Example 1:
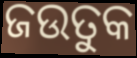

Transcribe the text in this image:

ଜଉତୁକ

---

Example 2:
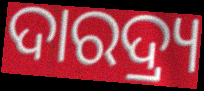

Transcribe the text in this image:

ଦାରଦ୍ର୍ୟ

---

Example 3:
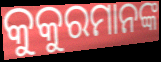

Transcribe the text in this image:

କୁକୁରମାନଙ୍କ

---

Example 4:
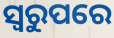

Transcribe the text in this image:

ସ୍ୱରୁପରେ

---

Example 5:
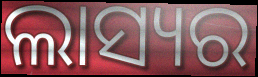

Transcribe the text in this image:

ଲାସ୍ୟର